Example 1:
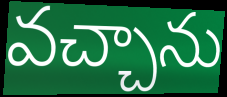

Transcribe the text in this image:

వచ్చాను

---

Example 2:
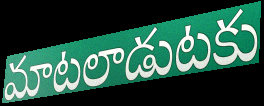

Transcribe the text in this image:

మాటలాడుటకు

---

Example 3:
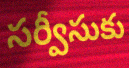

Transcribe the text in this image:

సర్వీసుకు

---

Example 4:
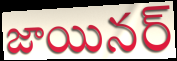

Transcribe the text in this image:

జాయినర్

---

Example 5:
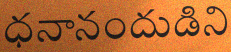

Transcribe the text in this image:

ధనానందుడిని